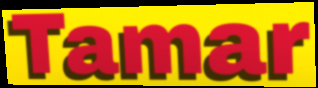
Tamar